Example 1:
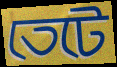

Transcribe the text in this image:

তেটে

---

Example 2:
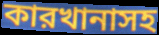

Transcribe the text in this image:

কারখানাসহ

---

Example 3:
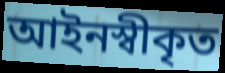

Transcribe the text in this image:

আইনস্বীকৃত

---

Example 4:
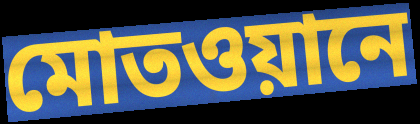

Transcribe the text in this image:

মোতওয়ানে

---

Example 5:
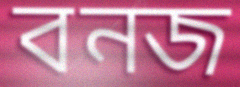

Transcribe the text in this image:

বনজ